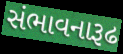
સંભાવનારૂઢ